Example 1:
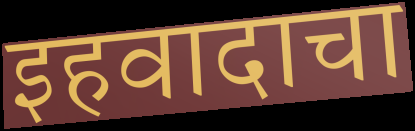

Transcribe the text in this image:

इहवादाचा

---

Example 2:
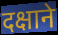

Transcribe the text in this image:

दक्षाने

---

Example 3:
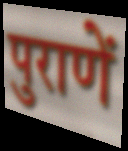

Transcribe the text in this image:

पुराणें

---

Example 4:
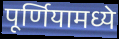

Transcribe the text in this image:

पूर्णियामध्ये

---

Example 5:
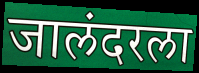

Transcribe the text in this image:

जालंदरला